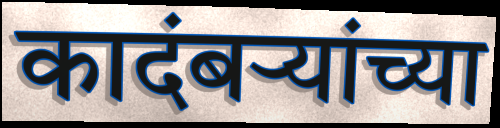
कादंबऱ्यांच्या